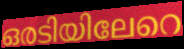
ഒരടിയിലേറെ